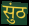
सुंठ